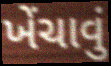
ખેંચાવું